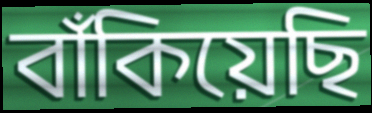
বাঁকিয়েছি